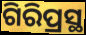
ଗିରିପ୍ରସ୍ଥ